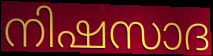
നിഷസാദ